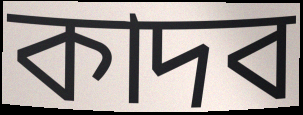
কাদব